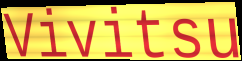
Vivitsu